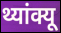
थ्यांक्यू